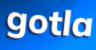
gotla